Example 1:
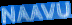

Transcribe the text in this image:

NAAVU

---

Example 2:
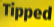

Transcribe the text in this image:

Tipped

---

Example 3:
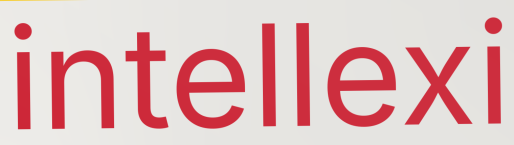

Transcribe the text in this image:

intellexi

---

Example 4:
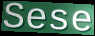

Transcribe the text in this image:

Sese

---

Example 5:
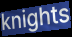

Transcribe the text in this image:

knights